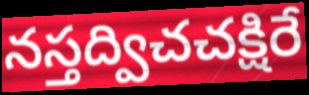
నస్తద్విచచక్షిరే